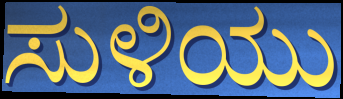
ಸುಳಿಯು